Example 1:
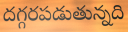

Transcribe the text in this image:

దగ్గరపడుతున్నది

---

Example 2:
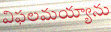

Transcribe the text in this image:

విఫలమయ్యాను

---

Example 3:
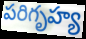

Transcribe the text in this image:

పరిగృహ్య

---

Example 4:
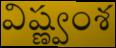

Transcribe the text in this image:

విష్ణ్వంశ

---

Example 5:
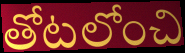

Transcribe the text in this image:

తోటలోంచి